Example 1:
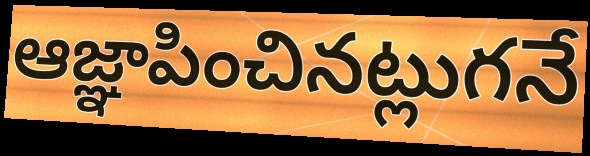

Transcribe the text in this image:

ఆజ్ఞాపించినట్లుగనే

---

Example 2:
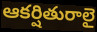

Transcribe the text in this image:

ఆకర్షితురాలై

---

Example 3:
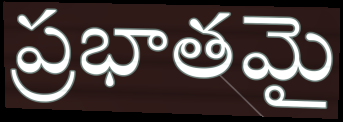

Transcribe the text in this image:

ప్రభాతమై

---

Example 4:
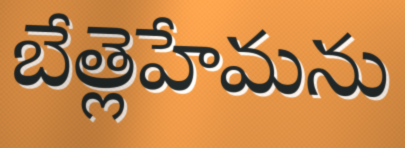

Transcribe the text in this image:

బేత్లెహేమను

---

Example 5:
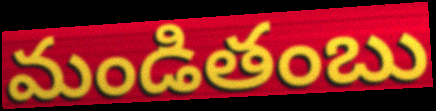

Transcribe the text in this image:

మండితంబు